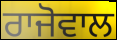
ਰਾਜੋਵਾਲ